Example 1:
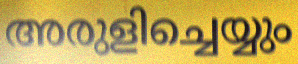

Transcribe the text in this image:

അരുളിച്ചെയ്യും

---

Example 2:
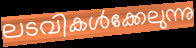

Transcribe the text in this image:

ലടവികൾക്കേലുന്നു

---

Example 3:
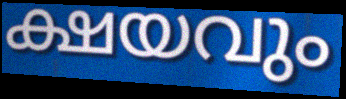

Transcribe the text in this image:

ക്ഷയവും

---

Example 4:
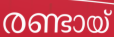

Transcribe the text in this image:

രണ്ടായ്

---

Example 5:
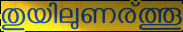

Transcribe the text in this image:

തുയിലുണര്ത്തൂ